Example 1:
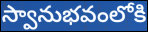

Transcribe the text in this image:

స్వానుభవంలోకి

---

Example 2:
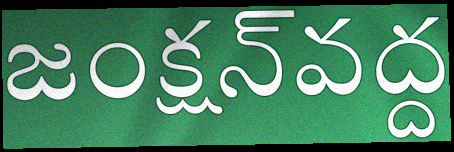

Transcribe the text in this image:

జంక్షన్‌వద్ద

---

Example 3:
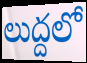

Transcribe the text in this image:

లుద్దలో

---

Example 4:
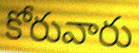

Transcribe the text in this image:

కోరువారు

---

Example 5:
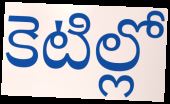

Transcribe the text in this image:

కెటిల్లో